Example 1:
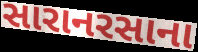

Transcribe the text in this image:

સારાનરસાના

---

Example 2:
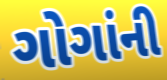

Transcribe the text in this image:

ગોગાંની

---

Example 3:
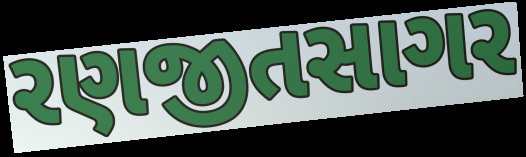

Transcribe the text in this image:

રણજીતસાગર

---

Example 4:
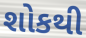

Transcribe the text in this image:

શોકથી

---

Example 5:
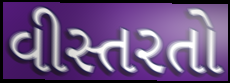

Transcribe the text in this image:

વીસ્તરતો